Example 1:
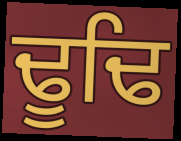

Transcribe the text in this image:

ਢੂਢਿ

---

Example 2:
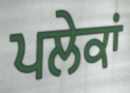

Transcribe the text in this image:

ਪਲੇਕਾਂ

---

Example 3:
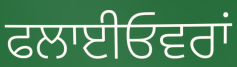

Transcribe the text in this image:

ਫਲਾਈਓਵਰਾਂ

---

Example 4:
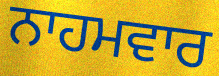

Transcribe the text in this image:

ਨਾਹਮਵਾਰ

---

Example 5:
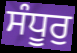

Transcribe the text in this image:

ਸੰਧੂਰੁ